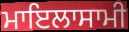
ਮਾਇਲਾਸਾਮੀ